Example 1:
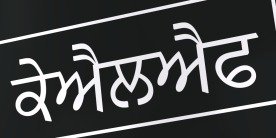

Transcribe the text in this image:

ਕੇਐਲਐਫ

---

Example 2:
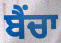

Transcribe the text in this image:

ਬੈਂਚਾ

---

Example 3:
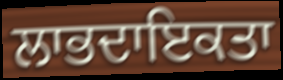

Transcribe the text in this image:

ਲਾਭਦਾਇਕਤਾ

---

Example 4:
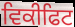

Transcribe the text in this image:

ਵਿਕੀਫਿਟ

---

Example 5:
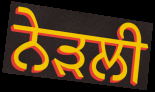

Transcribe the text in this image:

ਨੇੜਲੀ